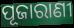
ପୂଜାରାଣୀ